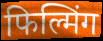
फिल्मिंग